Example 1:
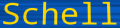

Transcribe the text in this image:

Schell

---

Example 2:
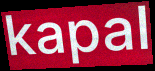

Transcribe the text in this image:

kapal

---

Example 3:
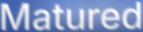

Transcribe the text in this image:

Matured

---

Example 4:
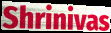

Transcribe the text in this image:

Shrinivas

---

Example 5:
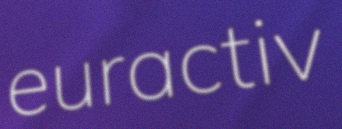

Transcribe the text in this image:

euractiv